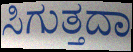
ಸಿಗುತ್ತದಾ